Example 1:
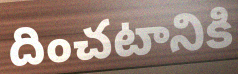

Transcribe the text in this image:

దించటానికి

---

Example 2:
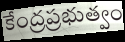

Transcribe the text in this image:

కేంద్రప్రభుత్వం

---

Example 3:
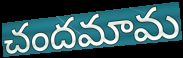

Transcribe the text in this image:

చందమామ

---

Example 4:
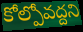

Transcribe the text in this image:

కోల్పోవద్దని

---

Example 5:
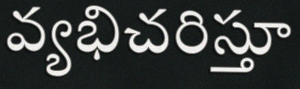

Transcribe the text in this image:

వ్యభిచరిస్తూ